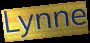
Lynne